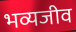
भव्यजीव